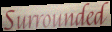
Surrounded